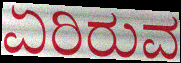
ಏರಿರುವ